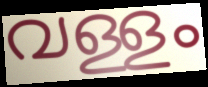
വള്ളം